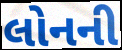
લોનની